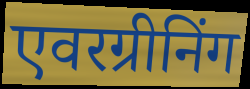
एवरग्रीनिंग